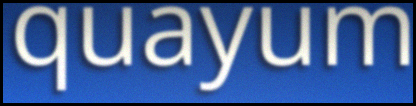
quayum